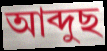
আব্দুছ